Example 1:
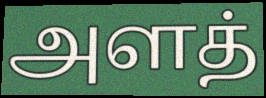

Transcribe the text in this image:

அளத்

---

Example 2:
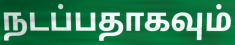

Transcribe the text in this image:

நடப்பதாகவும்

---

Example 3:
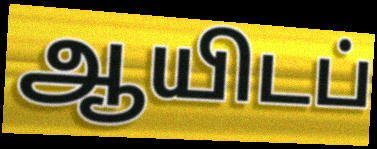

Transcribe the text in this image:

ஆயிடப்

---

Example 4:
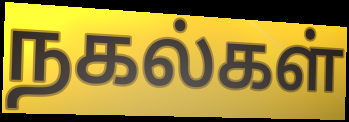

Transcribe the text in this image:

நகல்கள்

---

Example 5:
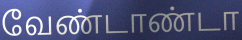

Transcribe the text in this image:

வேண்டாண்டா